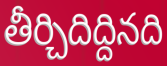
తీర్చిదిద్దినది